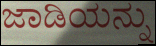
ಜಾಡಿಯನ್ನು